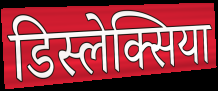
डिस्लेक्सिया